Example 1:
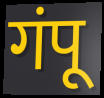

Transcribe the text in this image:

गंपू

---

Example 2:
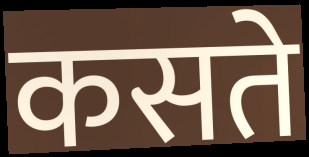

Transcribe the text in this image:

कसते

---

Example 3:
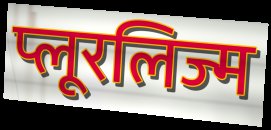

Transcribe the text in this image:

प्लूरलिज्म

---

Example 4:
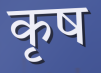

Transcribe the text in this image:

कृष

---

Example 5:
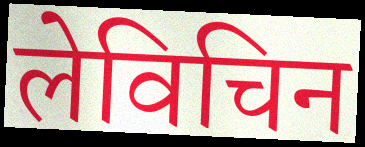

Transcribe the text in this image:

लेविचिन